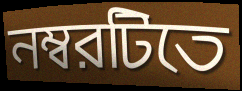
নম্বরটিতে